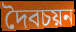
দৈবচয়ন